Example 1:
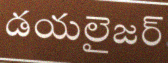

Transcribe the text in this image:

డయలైజర్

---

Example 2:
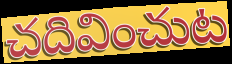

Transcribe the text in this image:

చదివించుట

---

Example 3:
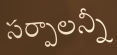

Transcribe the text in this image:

సర్పాలన్నీ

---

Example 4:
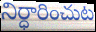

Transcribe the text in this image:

నిర్ధారించుట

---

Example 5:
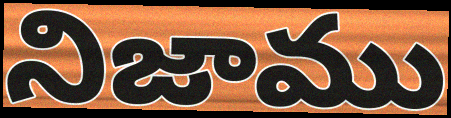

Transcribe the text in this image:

నిజాము